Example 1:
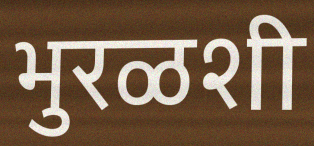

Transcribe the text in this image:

भुरळशी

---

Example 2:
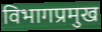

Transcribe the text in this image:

विभागप्रमुख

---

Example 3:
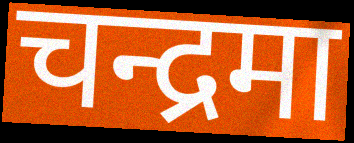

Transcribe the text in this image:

चन्द्रमा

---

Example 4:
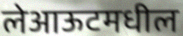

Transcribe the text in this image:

लेआऊटमधील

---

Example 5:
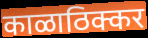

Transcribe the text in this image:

काळाठिक्कर